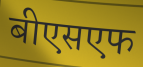
बीएसएफ